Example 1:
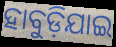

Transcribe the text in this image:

ହାବୁଡ଼ିଯାଇ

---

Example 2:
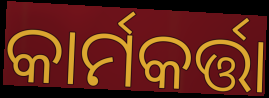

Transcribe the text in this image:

କାର୍ମକର୍ତ୍ତା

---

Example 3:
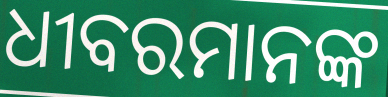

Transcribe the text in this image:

ଧୀବରମାନଙ୍କ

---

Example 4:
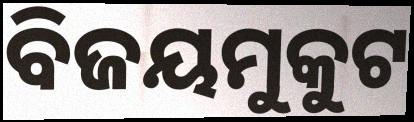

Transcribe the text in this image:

ବିଜୟମୁକୁଟ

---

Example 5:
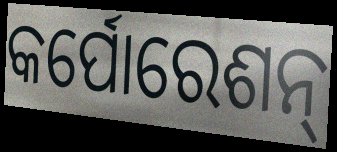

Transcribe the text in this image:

କର୍ପୋରେଶନ୍